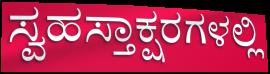
ಸ್ವಹಸ್ತಾಕ್ಷರಗಳಲ್ಲಿ